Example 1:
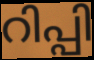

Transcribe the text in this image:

റിപ്പി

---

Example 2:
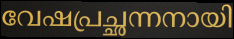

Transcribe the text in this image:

വേഷപ്രച്ഛന്നനായി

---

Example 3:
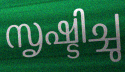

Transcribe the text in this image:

സൃഷ്ടിച്ചു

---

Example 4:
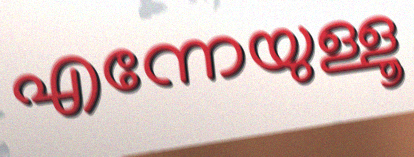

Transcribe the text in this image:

എന്നേയുള്ളൂ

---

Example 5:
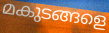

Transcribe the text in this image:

മകുടങ്ങളെ